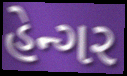
હેન્ગર